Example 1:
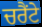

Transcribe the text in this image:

ਚਰੈਂਟੇ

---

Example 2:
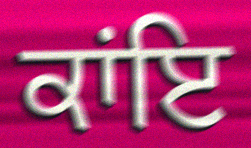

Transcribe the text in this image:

ਕਾਂਇ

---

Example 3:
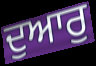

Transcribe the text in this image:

ਦੁਆਰੁ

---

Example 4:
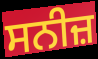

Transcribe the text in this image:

ਸਨੀਜ਼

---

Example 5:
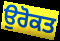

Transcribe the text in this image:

ਉਰੋਕਤ